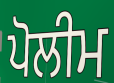
ਪੋਲੀਮ